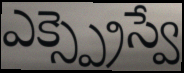
ఎక్స్ప్రెస్వే